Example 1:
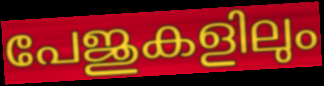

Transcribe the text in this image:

പേജുകളിലും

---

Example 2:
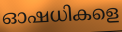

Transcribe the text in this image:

ഓഷധികളെ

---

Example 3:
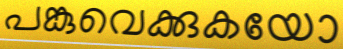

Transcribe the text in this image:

പങ്കുവെക്കുകയോ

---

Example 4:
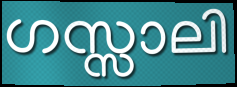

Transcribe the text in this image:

ഗസ്സാലി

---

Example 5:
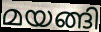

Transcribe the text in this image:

മയങ്ങി